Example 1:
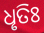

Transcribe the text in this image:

ଧୃତିଃ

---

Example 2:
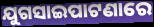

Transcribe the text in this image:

ଯୁଗସାଇପାଟଣାରେ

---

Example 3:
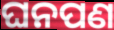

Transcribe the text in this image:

ଘନପଣ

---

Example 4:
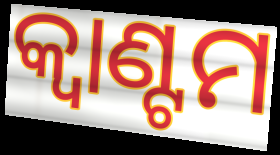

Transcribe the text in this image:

କ୍ୱାଣ୍ଟମ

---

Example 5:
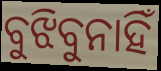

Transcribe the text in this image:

ବୁଝିବୁନାହିଁ